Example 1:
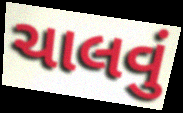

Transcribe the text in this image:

ચાલવું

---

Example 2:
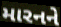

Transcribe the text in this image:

મારનને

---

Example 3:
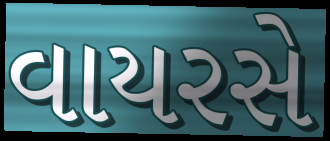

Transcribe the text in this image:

વાયરસે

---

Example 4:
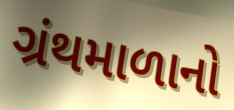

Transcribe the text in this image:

ગ્રંથમાળાનો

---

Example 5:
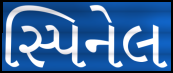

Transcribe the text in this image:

સ્પિનેલ